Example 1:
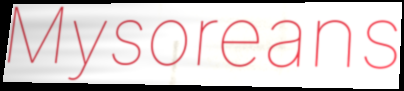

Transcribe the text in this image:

Mysoreans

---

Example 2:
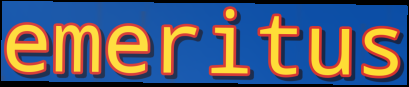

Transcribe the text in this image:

emeritus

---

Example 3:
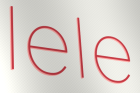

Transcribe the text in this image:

lele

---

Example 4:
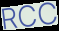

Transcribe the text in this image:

RCC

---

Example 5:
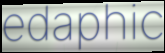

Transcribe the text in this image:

edaphic